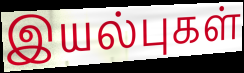
இயல்புகள்